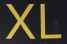
XL